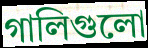
গালিগুলো